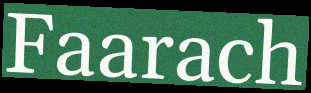
Faarach